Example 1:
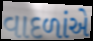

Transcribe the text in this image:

વાદળાંએ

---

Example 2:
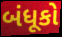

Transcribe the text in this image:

બંધૂકો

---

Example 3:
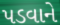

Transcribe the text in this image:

પડવાને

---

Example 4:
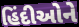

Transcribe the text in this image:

હિંદીઓને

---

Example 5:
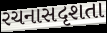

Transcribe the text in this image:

રચનાસદૃશતા